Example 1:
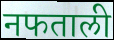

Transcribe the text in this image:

नफताली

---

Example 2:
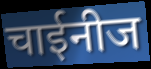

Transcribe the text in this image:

चाईनीज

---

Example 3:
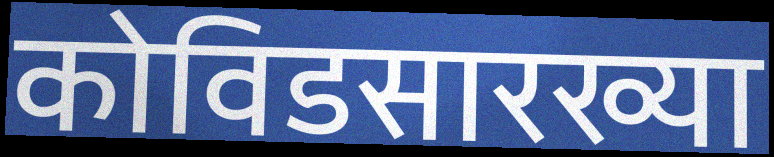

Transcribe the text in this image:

कोविडसारख्या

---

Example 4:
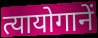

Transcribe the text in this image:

त्यायोगानें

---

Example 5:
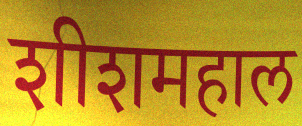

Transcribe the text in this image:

शीशमहाल